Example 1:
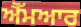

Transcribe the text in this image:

ਐੱਮਆਰ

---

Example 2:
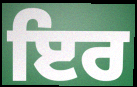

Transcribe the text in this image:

ਇਰ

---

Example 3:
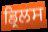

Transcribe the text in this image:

ਡ੍ਰਿਲਸ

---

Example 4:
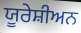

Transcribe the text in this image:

ਯੂਰੇਸ਼ੀਅਨ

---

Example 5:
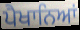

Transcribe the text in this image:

ਪੈਖਾਨਿਆਂ